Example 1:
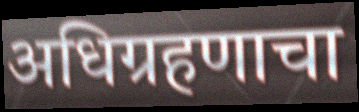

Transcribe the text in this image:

अधिग्रहणाचा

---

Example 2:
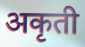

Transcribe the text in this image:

अकृती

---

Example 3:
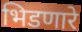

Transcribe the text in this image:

भिडणारे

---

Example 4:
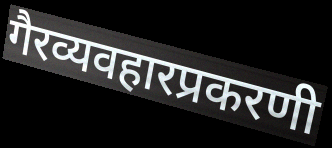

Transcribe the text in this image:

गैरव्यवहारप्रकरणी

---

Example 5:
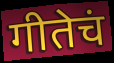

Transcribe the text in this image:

गीतेचं